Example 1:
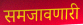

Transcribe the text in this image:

समजावणारी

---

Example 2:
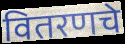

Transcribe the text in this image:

वितरणचे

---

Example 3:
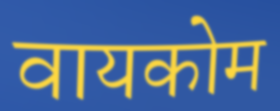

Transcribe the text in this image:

वायकोम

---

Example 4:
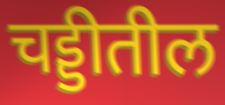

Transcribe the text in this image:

चड्डीतील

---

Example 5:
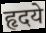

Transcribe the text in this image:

हृदये